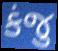
કંજુ